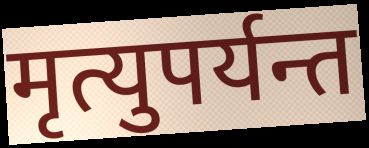
मृत्युपर्यन्त